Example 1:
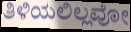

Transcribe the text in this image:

ತಿಳಿಯಲಿಲ್ಲವೋ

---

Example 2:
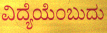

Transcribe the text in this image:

ವಿದ್ಯೆಯೆಂಬುದು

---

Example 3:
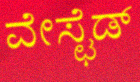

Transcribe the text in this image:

ವೇಸ್ಟೆಡ್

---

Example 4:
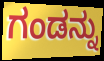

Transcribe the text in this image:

ಗಂಡನ್ನು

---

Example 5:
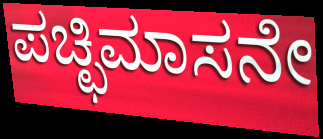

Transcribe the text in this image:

ಪಚ್ಛಿಮಾಸನೇ